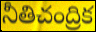
నీతిచంద్రిక